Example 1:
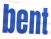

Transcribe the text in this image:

bent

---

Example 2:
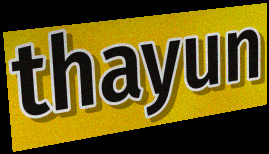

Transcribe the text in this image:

thayun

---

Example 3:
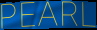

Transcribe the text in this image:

PEARL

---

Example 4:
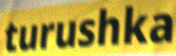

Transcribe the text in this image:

turushka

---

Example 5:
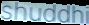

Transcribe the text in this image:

shuddhi